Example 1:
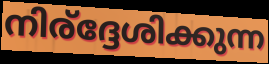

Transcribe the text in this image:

നിര്ദ്ദേശിക്കുന്ന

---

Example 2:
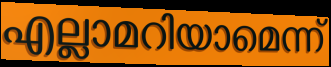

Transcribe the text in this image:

എല്ലാമറിയാമെന്ന്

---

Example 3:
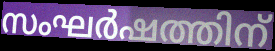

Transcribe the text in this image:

സംഘർഷത്തിന്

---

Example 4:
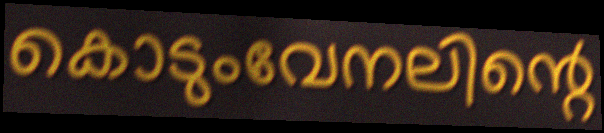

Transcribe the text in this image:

കൊടുംവേനലിന്റെ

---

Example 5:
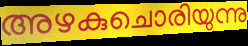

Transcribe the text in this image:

അഴകുചൊരിയുന്നു